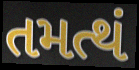
તમત્થં